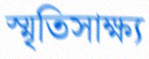
স্মৃতিসাক্ষ্য